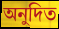
অনুদিত